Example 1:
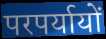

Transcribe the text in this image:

परपर्यायों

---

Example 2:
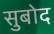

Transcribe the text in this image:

सुबोद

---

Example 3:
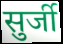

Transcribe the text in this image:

सुर्जी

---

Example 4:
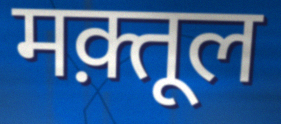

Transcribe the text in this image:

मक़्तूल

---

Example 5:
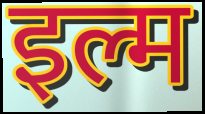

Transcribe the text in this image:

इल्म